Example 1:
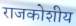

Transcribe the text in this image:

राजकोशीय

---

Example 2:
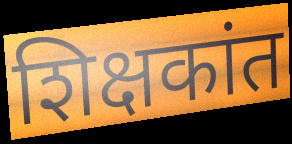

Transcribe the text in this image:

शिक्षकांत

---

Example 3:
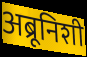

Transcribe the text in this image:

अब्रूनिशी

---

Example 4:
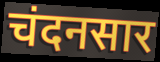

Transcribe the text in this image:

चंदनसार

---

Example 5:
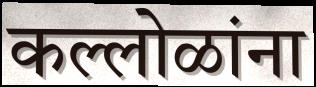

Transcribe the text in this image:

कल्लोळांना